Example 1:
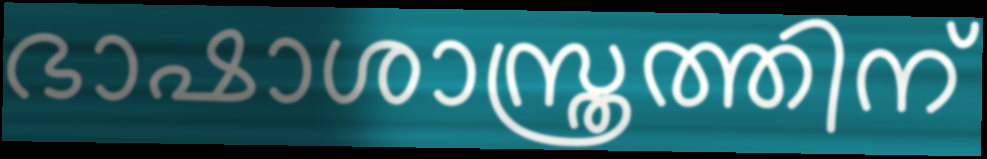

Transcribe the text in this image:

ഭാഷാശാസ്ത്രത്തിന്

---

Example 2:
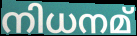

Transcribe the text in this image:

നിധനമ്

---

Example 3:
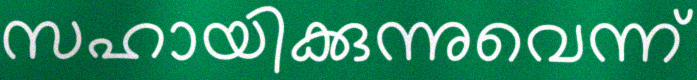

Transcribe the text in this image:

സഹായിക്കുന്നുവെന്ന്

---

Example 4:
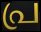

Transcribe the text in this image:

പ്ര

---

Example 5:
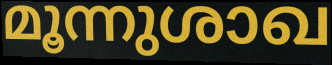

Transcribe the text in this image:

മൂന്നുശാഖ